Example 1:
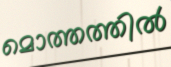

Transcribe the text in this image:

മൊത്തത്തിൽ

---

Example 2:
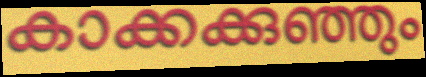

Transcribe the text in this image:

കാക്കക്കുഞ്ഞും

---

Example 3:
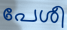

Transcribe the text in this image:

പേശീ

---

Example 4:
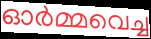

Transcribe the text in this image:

ഓർമ്മവെച്ച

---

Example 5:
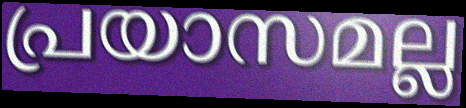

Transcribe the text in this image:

പ്രയാസമല്ല